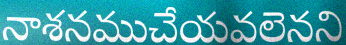
నాశనముచేయవలెనని